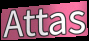
Attas